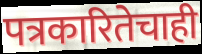
पत्रकारितेचाही